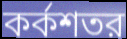
কর্কশতর